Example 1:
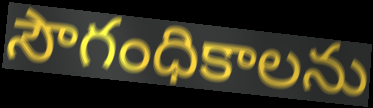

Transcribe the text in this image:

సౌగంధికాలను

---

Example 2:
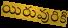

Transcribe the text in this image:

యిరువురికి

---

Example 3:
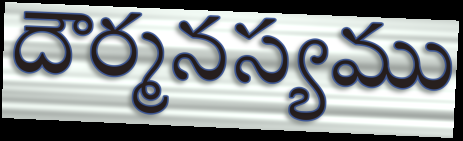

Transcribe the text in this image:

దౌర్మనస్యము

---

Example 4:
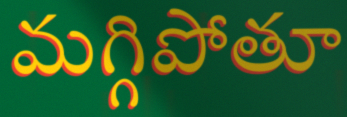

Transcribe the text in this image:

మగ్గిపోతూ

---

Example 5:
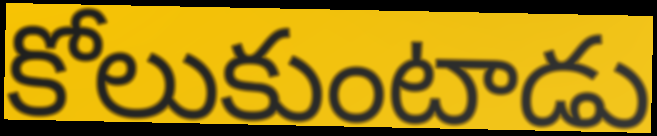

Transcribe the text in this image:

కోలుకుంటాడు